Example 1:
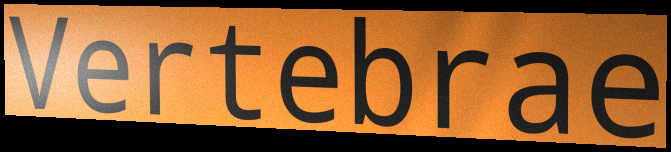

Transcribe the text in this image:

Vertebrae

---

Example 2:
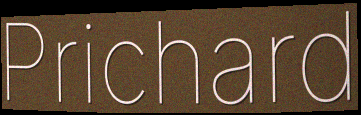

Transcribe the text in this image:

Prichard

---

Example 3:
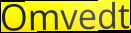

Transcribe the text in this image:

Omvedt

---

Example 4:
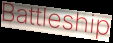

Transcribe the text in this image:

Battleship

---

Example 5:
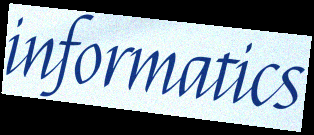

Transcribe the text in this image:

informatics